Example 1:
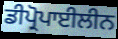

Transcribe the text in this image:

ਡੀਪ੍ਰੋਪਾਈਲੀਨ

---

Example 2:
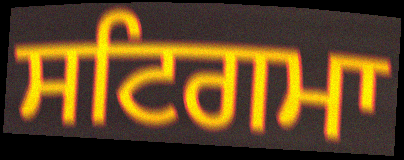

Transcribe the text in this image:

ਸਟਿਗਮਾ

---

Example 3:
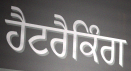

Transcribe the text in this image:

ਹੈਟਰੈਕਿੰਗ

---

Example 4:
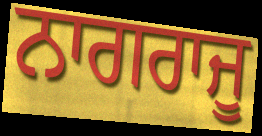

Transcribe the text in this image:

ਨਾਗਰਾਜੂ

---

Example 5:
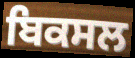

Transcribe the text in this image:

ਬਿਕਸਲ